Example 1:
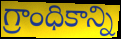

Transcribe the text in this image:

గ్రాంధికాన్ని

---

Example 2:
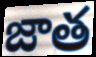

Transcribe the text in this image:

జాత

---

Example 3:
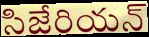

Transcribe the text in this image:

సిజేరియన్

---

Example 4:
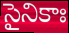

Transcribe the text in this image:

సైనికాః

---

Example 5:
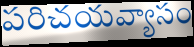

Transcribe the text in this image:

పరిచయవ్యాసం